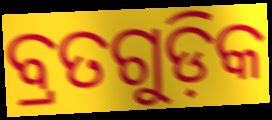
ବ୍ରତଗୁଡ଼ିକ